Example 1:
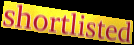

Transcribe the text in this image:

shortlisted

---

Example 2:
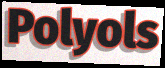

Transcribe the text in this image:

Polyols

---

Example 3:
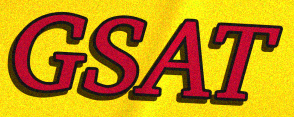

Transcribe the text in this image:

GSAT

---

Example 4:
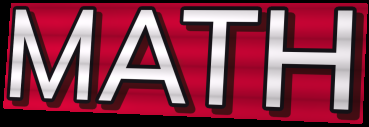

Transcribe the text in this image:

MATH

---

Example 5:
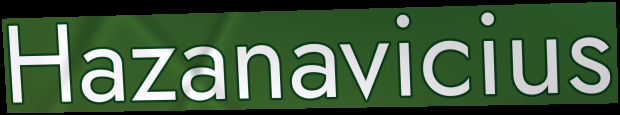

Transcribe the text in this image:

Hazanavicius